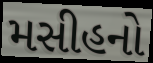
મસીહનો